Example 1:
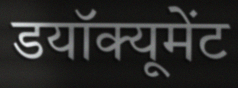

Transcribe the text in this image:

डयॉक्‍यूमेंट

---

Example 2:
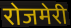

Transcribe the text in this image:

रोजमेरी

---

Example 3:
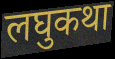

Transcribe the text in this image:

लघुकथा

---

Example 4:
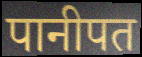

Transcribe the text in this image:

पानीपत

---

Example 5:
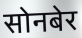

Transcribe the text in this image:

सोनबेर